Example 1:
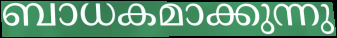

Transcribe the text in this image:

ബാധകമാക്കുന്നു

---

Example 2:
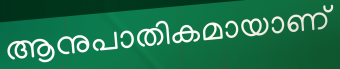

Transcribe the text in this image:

ആനുപാതികമായാണ്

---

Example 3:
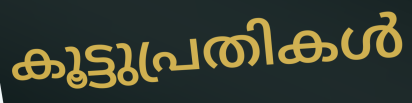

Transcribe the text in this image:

കൂട്ടുപ്രതികൾ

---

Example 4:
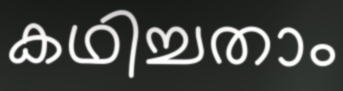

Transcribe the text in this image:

കഥിച്ചതാം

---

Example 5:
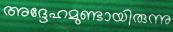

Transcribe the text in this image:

അദ്ദേഹമുണ്ടായിരുന്നു